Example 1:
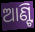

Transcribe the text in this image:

ଆଣ୍ଟି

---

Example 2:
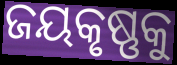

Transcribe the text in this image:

ଜୟକୃଷ୍ଣକୁ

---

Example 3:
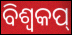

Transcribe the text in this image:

ବିଶ୍ୱକପ୍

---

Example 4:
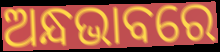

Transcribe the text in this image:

ଅନ୍ଧଭାବରେ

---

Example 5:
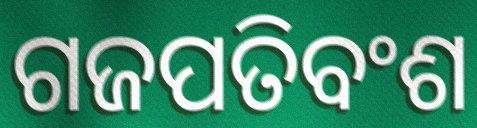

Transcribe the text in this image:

ଗଜପତିବଂଶ